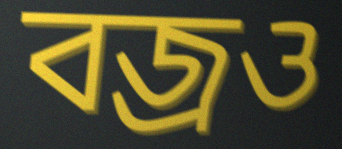
বজ্রও